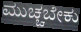
ಮುಚ್ಚಬೇಕು